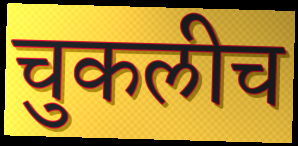
चुकलीच